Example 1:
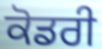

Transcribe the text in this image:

ਕੋਡਰੀ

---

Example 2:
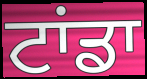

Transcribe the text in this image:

ਟਾਂਡਾ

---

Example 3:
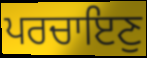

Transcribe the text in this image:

ਪਰਚਾਇਣੁ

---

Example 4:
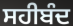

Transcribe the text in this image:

ਸਹੀਬੰਦ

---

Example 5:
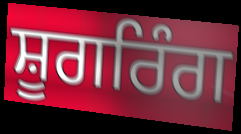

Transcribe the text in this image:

ਸ਼ੂਗਰਿੰਗ